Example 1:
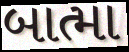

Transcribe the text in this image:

બાત્મા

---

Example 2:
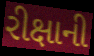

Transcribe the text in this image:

રીક્ષાની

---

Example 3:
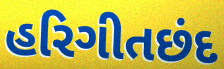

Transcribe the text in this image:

હરિગીતછંદ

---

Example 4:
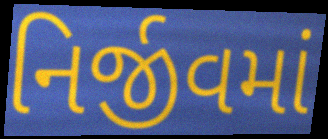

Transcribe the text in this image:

નિર્જીવમાં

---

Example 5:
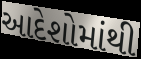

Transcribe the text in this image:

આદેશોમાંથી